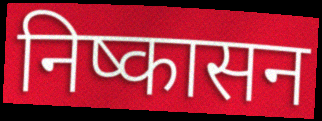
निष्कासन